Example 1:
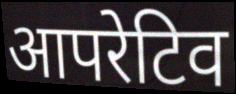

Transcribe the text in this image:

आपरेटिव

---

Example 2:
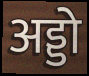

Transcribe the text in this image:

अड्डो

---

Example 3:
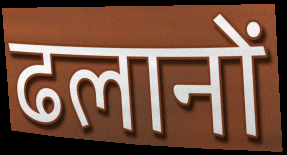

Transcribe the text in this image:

ढलानों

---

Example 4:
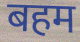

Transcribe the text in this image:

बहम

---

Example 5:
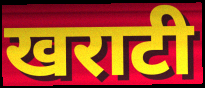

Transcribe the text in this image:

खराटी